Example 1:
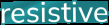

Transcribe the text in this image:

resistive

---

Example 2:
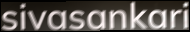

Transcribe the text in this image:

sivasankari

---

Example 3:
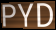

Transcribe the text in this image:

PYD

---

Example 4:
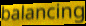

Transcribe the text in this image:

balancing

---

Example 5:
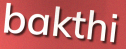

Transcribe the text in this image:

bakthi